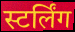
स्टर्लिंग